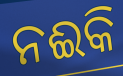
ନଈକି